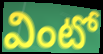
వింటో